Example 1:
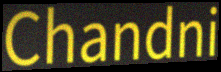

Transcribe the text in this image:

Chandni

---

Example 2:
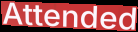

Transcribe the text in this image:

Attended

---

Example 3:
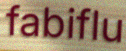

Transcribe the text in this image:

fabiflu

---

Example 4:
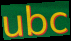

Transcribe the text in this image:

ubc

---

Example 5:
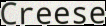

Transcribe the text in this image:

Creese